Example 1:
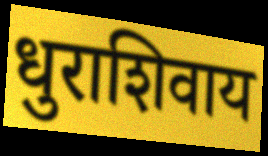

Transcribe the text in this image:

धुराशिवाय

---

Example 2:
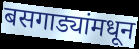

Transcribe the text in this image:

बसगाड्यांमधून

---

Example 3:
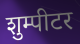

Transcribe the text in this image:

शुम्पीटर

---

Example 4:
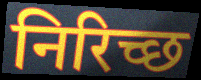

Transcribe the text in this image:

निरिच्छ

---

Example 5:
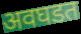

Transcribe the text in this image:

अवघडत